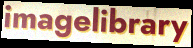
imagelibrary